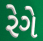
રેગે